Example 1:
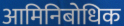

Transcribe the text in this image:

आमिनिबोधिक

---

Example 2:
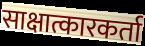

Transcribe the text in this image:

साक्षात्कारकर्ता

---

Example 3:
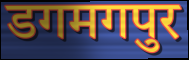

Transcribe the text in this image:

डगमगपुर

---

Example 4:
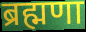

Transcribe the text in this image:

ब्रह्मणा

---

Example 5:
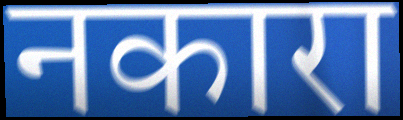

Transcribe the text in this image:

नकारा